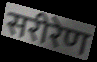
सरीरेण